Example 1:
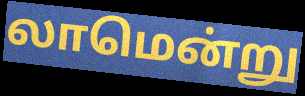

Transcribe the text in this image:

லாமென்று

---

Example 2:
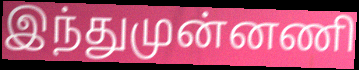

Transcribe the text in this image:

இந்துமுன்னணி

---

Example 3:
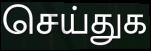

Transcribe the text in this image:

செய்துக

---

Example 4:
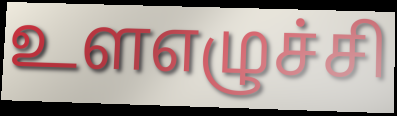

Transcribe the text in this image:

உளஎழுச்சி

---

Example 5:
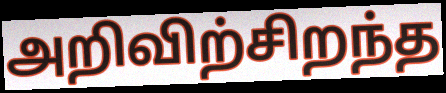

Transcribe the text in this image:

அறிவிற்சிறந்த